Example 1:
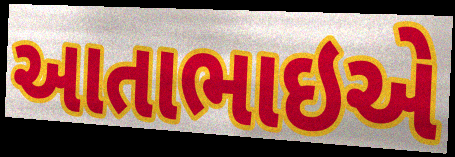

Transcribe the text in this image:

આતાભાઇએ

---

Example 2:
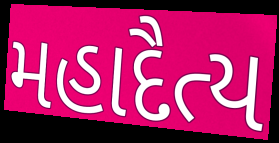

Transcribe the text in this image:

મહાદૈત્ય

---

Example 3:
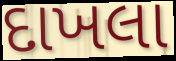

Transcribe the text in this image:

દાખલા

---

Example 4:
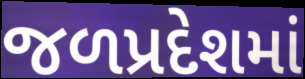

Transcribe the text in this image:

જળપ્રદેશમાં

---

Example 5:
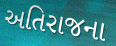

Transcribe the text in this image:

અતિરાજના